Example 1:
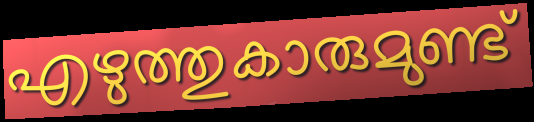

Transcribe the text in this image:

എഴുത്തുകാരുമുണ്ട്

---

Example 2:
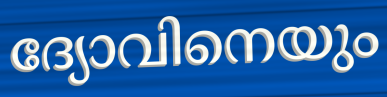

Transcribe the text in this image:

ദ്യോവിനെയും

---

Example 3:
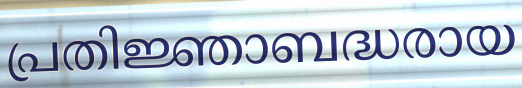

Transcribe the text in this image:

പ്രതിജ്ഞാബദ്ധരായ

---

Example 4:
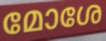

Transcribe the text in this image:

മോശേ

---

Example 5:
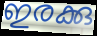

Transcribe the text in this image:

ഇരക്കു